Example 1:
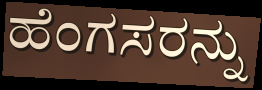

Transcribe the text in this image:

ಹೆಂಗಸರನ್ನು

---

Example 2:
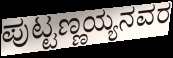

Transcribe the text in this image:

ಪುಟ್ಟಣ್ಣಯ್ಯನವರ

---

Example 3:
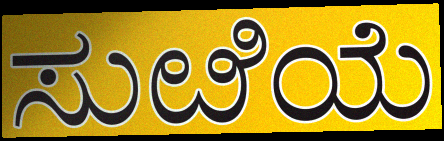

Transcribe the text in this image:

ಸುೞಿಯೆ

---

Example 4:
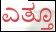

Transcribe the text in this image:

ಎತ್ತೂ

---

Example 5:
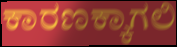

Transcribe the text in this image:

ಕಾರಣಕ್ಕಾಗಲಿ